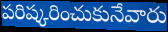
పరిష్కరించుకునేవారు